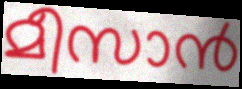
മീസാൻ